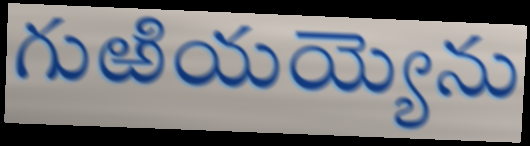
గుఱియయ్యెను